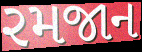
રમજાન